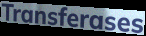
Transferases